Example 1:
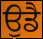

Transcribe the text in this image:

ਉਡੈ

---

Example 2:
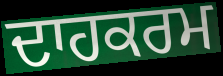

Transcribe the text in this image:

ਦਾਹਕਰਮ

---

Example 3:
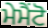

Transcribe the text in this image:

ਮੇਮੈਂਟੋ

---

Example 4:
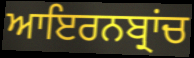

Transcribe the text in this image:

ਆਇਰਨਬ੍ਰਾਂਚ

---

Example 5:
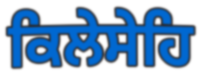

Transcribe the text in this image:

ਕਿਲੇਸੇਹਿ